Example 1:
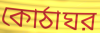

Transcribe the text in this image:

কোঠাঘর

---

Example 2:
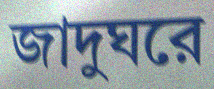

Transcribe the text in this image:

জাদুঘরে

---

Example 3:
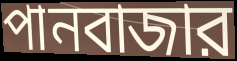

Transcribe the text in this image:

পানবাজার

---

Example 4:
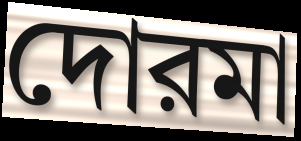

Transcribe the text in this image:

দোরমা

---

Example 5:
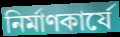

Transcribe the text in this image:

নির্মাণকার্যে